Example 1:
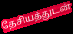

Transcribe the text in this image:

தேசியத்துடன்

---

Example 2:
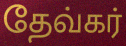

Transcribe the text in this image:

தேவ்கர்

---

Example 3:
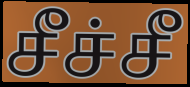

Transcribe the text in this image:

சீச்சீ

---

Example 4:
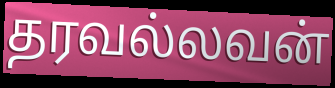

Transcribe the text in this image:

தரவல்லவன்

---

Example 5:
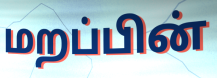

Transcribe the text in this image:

மறப்பின்